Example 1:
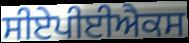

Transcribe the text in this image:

ਸੀਏਪੀਈਐਕਸ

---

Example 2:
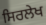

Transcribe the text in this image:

ਸਿਰਲੇਖ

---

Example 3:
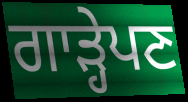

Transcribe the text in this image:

ਗਾੜ੍ਹੇਪਣ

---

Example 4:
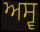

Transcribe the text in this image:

ਅਸ੍ਵ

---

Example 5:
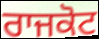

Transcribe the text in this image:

ਰਾਜਕੋਟ